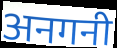
अनगनी